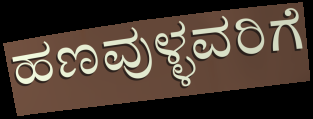
ಹಣವುಳ್ಳವರಿಗೆ